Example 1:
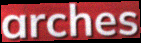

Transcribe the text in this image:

arches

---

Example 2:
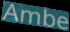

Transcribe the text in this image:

Ambe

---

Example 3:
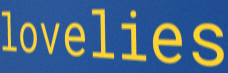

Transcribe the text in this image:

lovelies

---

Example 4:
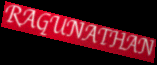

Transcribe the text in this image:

RAGUNATHAN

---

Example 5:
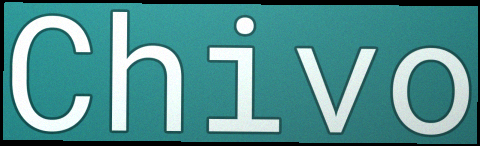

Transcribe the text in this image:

Chivo